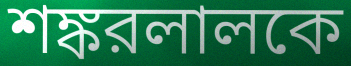
শঙ্করলালকে